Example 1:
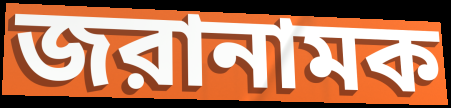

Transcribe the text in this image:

জরানামক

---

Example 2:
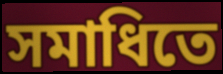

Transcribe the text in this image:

সমাধিতে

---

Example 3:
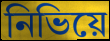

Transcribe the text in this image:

নিভিয়ে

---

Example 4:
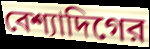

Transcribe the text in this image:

বেশ্যাদিগের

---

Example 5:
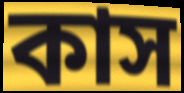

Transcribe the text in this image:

কাস